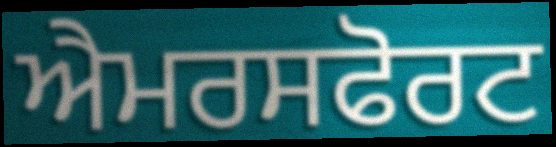
ਐਮਰਸਫੋਰਟ